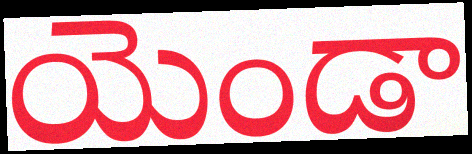
యెండా